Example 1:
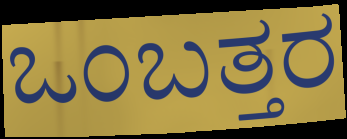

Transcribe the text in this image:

ಒಂಬತ್ತರ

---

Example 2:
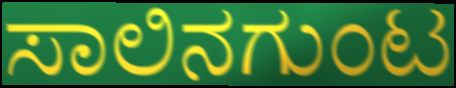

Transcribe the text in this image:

ಸಾಲಿನಗುಂಟ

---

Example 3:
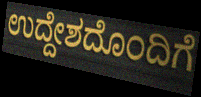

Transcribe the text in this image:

ಉದ್ದೇಶದೊಂದಿಗೆ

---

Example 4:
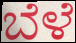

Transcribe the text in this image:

ಬೆಳೆ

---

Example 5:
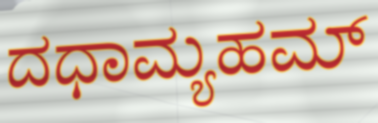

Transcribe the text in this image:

ದಧಾಮ್ಯಹಮ್